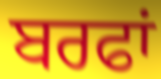
ਬਰਫਾਂ